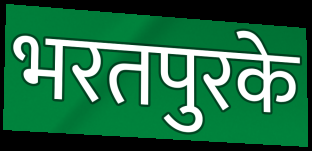
भरतपुरके